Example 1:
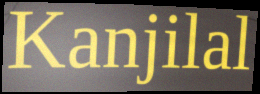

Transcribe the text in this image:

Kanjilal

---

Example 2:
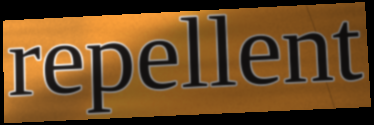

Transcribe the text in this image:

repellent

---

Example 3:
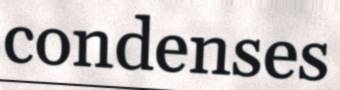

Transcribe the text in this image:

condenses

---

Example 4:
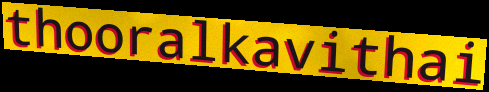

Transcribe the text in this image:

thooralkavithai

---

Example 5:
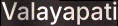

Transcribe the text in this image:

Valayapati